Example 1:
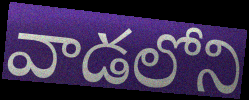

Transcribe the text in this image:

వాడలోని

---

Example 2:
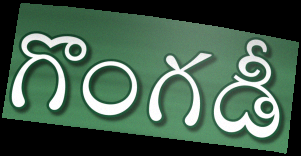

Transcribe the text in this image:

గొంగడీ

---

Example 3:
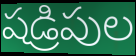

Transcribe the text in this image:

షడ్రిపుల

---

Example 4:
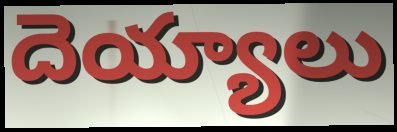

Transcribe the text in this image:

దెయ్యాలు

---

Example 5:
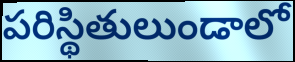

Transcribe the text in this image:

పరిస్థితులుండాలో